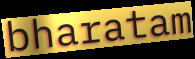
bharatam